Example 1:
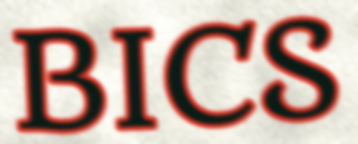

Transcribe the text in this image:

BICS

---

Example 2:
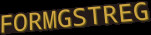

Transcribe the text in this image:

FORMGSTREG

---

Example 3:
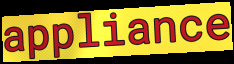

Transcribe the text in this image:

appliance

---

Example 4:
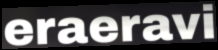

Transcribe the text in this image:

eraeravi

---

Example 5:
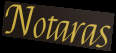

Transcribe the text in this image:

Notaras